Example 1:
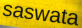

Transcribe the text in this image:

saswata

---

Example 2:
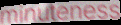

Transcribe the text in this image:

minuteness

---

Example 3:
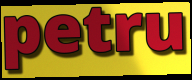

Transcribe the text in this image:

petru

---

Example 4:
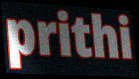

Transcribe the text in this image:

prithi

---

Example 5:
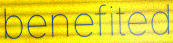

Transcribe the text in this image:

benefited